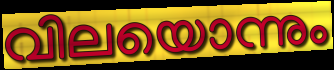
വിലയൊന്നും